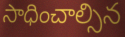
సాధించాల్సిన